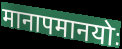
मानापमानयोः